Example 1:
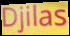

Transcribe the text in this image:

Djilas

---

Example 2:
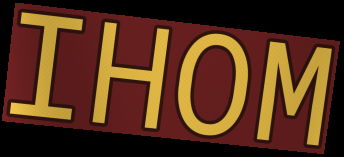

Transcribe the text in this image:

IHOM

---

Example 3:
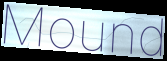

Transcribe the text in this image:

Mound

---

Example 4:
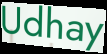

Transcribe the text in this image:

Udhay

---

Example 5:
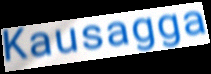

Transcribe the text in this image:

Kausagga